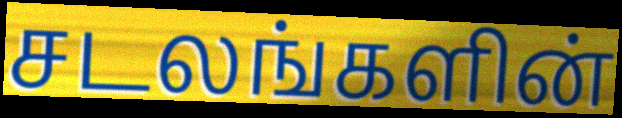
சடலங்களின்